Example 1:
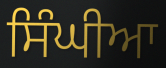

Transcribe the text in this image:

ਸਿੰਘੀਆ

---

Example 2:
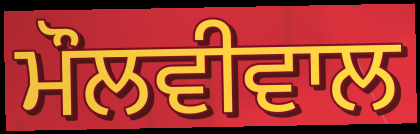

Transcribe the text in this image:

ਮੌਲਵੀਵਾਲ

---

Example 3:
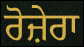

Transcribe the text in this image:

ਰੋਜ਼ੇਰਾ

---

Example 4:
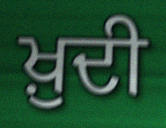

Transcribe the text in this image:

ਖ਼ੁਦੀ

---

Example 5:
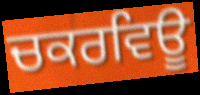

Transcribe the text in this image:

ਚਕਰਵਿਊ